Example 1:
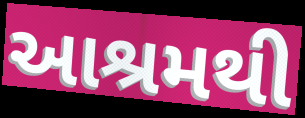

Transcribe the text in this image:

આશ્રમથી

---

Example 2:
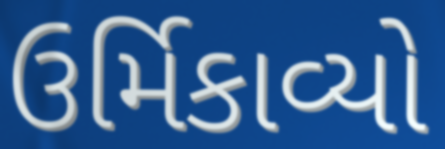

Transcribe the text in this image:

ઉર્મિકાવ્યો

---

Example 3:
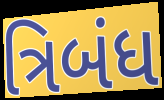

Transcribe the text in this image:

ત્રિબંધ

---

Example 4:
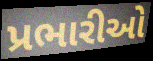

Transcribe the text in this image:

પ્રભારીઓ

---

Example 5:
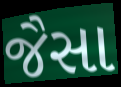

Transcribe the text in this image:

જૈસા